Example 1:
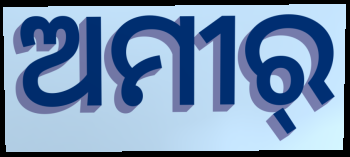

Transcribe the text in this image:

ଅମୀର୍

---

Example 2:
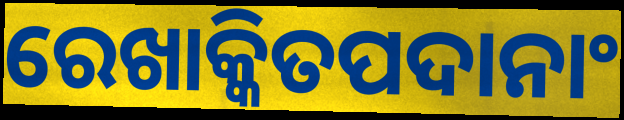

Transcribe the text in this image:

ରେଖାକ୍କିତପଦାନାଂ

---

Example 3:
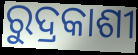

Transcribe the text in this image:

ରୁଦ୍ରକାଶୀ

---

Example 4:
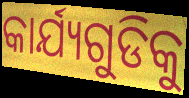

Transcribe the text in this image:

କାର୍ଯ୍ୟଗୁଡିକୁ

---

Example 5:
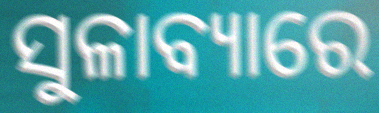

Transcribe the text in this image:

ସୁଳାବ୍ୟାରେ